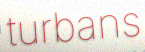
turbans